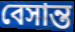
বেসান্ত